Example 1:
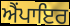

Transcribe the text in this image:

ਐਂਪਾਇਰ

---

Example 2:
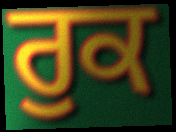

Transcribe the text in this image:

ਰੁਕ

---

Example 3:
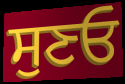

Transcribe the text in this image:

ਸੁਣਓ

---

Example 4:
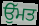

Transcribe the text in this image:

ਉੱਮਤ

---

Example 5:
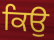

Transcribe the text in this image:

ਕਿਉ